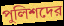
পুলিশদের